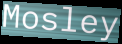
Mosley